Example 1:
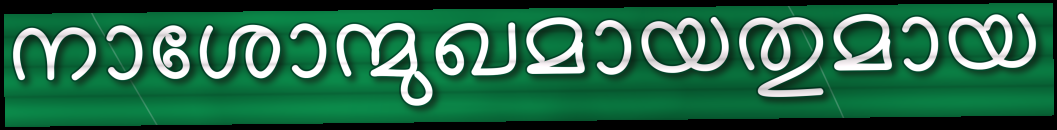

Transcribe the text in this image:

നാശോന്മുഖമായതുമായ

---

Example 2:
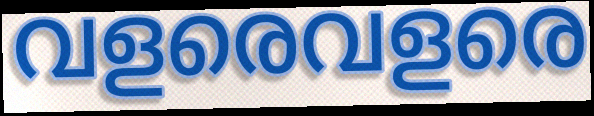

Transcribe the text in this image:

വളരെവളരെ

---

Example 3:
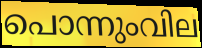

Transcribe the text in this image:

പൊന്നുംവില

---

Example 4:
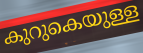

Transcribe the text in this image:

കുറുകെയുള്ള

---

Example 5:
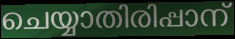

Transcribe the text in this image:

ചെയ്യാതിരിപ്പാന്